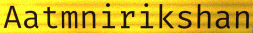
Aatmnirikshan